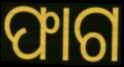
ଫାଗ